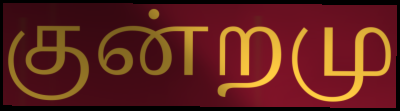
குன்றமு